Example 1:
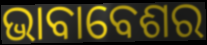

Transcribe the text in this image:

ଭାବାବେଶର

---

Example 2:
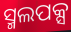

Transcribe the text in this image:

ସ୍ମଲପକ୍ସ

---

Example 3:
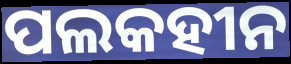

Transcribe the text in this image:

ପଲକହୀନ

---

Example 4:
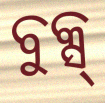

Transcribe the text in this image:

ବୁକ୍ସ୍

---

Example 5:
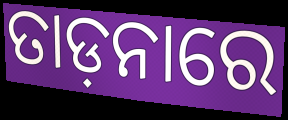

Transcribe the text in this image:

ତାଡ଼ନାରେ